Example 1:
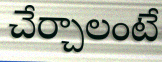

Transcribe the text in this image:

చేర్చాలంటే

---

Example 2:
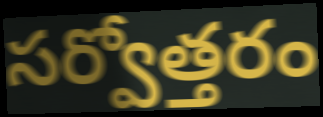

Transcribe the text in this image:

సర్వోత్తరం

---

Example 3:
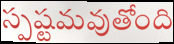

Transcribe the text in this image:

స్పష్టమవుతోంది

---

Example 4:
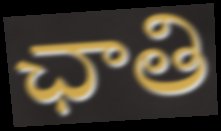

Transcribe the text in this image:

ఛాతి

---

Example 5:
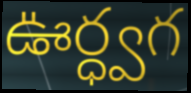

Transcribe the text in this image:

ఊర్ధ్వగ